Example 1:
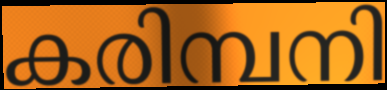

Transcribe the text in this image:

കരിമ്പനി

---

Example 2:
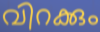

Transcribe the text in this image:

വിറക്കും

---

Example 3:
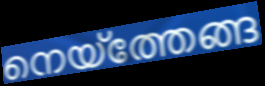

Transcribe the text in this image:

നെയ്ത്തേങ്ങ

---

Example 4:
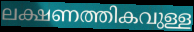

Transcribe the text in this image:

ലക്ഷണത്തികവുള്ള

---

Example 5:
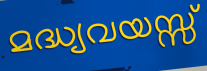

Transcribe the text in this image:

മദ്ധ്യവയസ്സ്